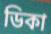
ডিকা